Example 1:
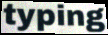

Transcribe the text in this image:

typing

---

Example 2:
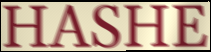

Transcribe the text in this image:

HASHE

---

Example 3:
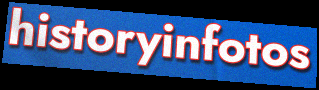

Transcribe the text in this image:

historyinfotos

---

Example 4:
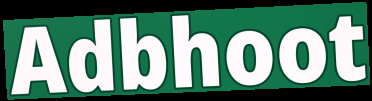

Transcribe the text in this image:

Adbhoot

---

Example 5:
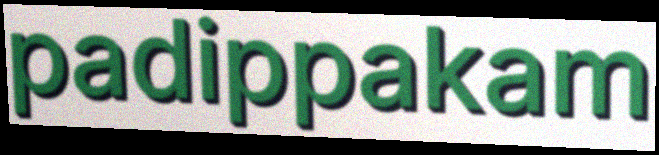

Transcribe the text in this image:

padippakam